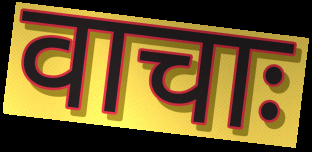
वाचाः